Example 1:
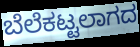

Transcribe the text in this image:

ಬೆಲೆಕಟ್ಟಲಾಗದ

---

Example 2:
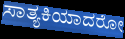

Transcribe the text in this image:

ಸಾತ್ಯಕಿಯಾದರೋ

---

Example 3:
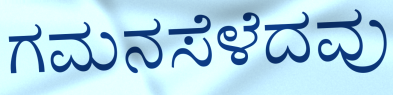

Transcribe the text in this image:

ಗಮನಸೆಳೆದವು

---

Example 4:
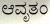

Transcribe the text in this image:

ಆವೃತಂ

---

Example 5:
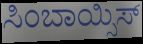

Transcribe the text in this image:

ಸಿಂಬಾಯ್ಸಿಸ್